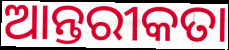
ଆନ୍ତରୀକତା